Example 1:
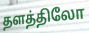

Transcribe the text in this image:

தளத்திலோ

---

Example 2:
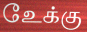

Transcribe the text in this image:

உேக்கு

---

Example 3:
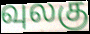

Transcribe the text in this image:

வுலகு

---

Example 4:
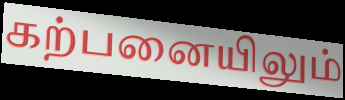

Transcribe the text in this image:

கற்பனையிலும்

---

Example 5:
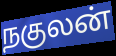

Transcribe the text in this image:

நகுலன்